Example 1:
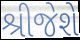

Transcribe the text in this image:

શ્રીજેશે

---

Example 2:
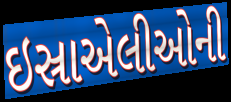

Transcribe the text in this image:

ઇસ્રાએલીઓની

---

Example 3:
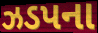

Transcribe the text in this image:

ઝડપના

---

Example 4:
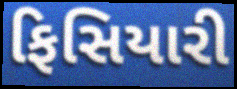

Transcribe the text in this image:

ફિસિયારી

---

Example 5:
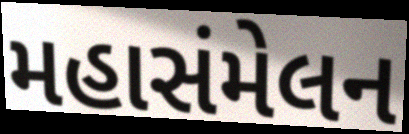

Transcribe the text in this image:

મહાસંમેલન